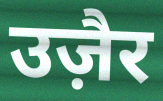
उज़ैर